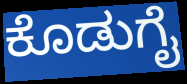
ಕೊಡುಗೈ